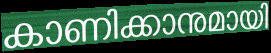
കാണിക്കാനുമായി